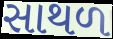
સાથળ